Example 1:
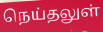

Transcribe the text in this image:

நெய்தலுள்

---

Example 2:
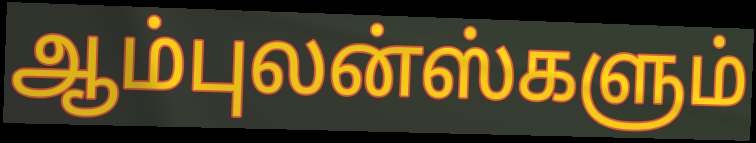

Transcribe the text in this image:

ஆம்புலன்ஸ்களும்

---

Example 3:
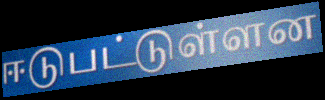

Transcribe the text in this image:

ஈடுபட்டுள்ளன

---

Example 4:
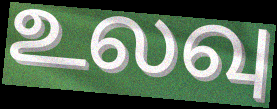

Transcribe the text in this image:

உலவு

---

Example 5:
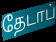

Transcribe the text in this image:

தேடாப்